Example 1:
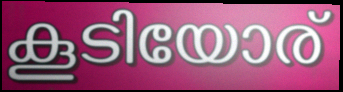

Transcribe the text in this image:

കൂടിയോര്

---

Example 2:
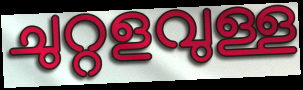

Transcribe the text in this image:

ചുറ്റളവുള്ള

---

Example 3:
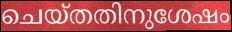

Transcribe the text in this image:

ചെയ്തതിനുശേഷം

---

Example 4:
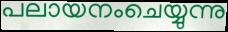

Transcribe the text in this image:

പലായനംചെയ്യുന്നു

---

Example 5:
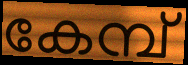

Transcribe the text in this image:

കേമ്പ്